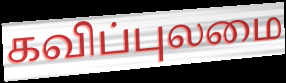
கவிப்புலமை